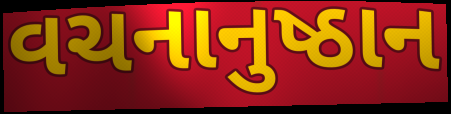
વચનાનુષ્ઠાન